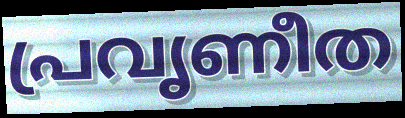
പ്രവൃണീത